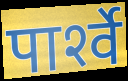
पार्श्वे